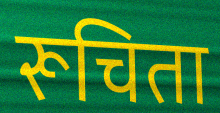
रूचिता